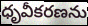
ధృవీకరణను